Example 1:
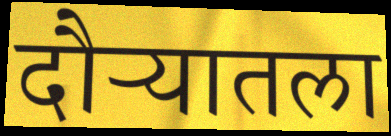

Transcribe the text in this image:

दौऱ्यातला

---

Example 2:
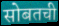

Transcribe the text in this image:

सोबतची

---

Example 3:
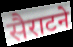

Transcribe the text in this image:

सैराटने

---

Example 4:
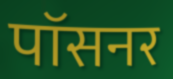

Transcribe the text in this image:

पॉसनर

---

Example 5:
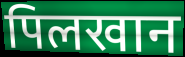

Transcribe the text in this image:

पिलखान